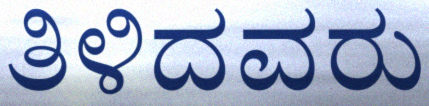
ತಿಳಿದವರು